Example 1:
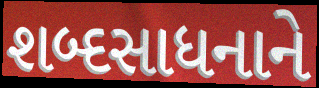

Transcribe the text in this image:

શબ્દસાધનાને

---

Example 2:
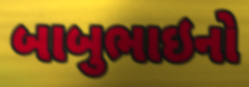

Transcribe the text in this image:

બાબુભાઇનો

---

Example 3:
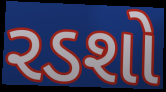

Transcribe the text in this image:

રડશો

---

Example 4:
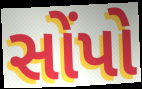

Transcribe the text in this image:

સોંપો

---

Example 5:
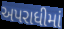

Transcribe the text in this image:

અપરાધીમાં